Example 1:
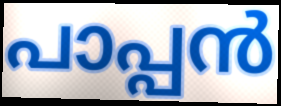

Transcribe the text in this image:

പാപ്പൻ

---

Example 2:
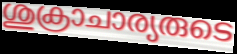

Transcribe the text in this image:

ശുക്രാചാര്യരുടെ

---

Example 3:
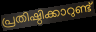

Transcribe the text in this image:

പ്രതിഷ്ഠിക്കാറുണ്ട്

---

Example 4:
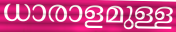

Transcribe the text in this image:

ധാരാളമുള്ള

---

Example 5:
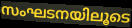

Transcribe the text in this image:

സംഘടനയിലൂടെ